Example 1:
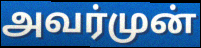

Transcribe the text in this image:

அவர்முன்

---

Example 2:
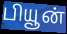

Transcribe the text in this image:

பியூன்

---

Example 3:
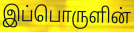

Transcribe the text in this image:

இப்பொருளின்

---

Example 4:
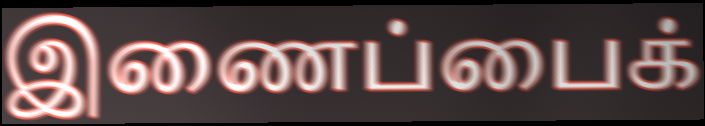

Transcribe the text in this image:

இணைப்பைக்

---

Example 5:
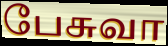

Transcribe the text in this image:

பேசுவா